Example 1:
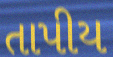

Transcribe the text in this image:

તાપીય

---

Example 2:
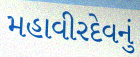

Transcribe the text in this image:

મહાવીરદેવનું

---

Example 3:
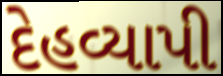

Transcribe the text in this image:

દેહવ્યાપી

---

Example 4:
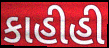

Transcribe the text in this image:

કાહીહી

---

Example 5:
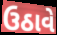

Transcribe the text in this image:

ઉઠાવે